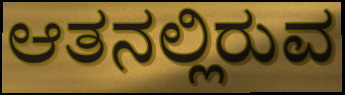
ಆತನಲ್ಲಿರುವ